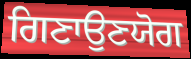
ਗਿਣਾਉਣਯੋਗ